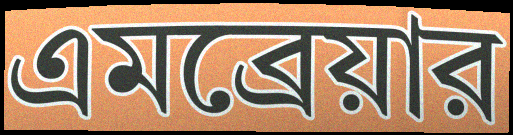
এমব্রেয়ার